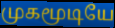
முகமூடியே